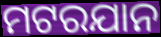
ମଟରଯାନ